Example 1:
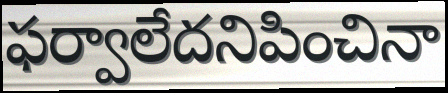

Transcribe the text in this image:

ఫర్వాలేదనిపించినా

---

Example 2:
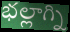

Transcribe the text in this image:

భల్లాగ్ని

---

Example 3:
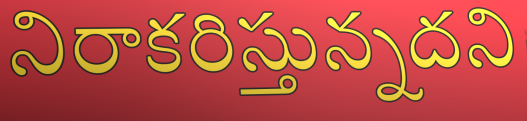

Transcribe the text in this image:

నిరాకరిస్తున్నదని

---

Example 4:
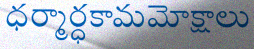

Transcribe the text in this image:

ధర్మార్ధకామమోక్షాలు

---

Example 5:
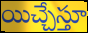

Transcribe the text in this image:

యిచ్చేస్తూ